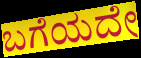
ಬಗೆಯದೇ